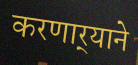
करणार्याने